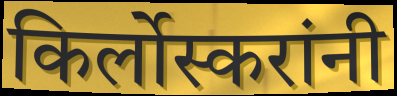
किर्लोस्करांनी